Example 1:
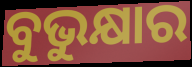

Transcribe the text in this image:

ବୁଭୁକ୍ଷାର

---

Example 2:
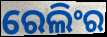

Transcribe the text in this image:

ରେଲିଂର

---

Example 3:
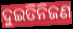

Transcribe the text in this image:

ଦୁଇତିନିଜଣ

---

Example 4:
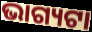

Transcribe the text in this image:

ଭାଗ୍ୟଟା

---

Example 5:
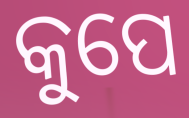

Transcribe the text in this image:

କୁପେ